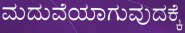
ಮದುವೆಯಾಗುವುದಕ್ಕೆ